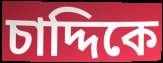
চাদ্দিকে